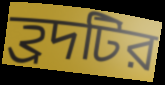
হ্রদটির